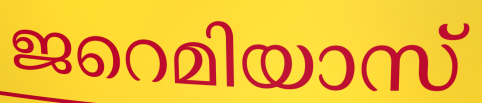
ജറെമിയാസ്